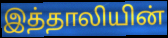
இத்தாலியின்